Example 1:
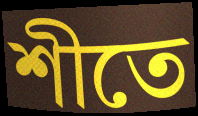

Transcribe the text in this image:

শীতে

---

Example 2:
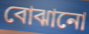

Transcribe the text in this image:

বোঝানো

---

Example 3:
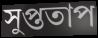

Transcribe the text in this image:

সুপ্ততাপ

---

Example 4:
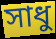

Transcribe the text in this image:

সাধু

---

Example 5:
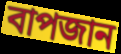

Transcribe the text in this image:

বাপজান